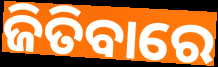
ଜିତିବାରେ